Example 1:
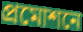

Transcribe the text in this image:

প্রমোশনে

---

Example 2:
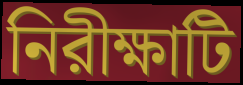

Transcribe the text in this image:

নিরীক্ষাটি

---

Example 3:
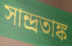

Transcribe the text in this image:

সান্দ্রতাঙ্ক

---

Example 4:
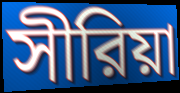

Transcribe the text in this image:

সীরিয়া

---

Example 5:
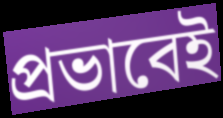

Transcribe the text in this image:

প্রভাবেই